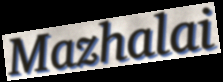
Mazhalai